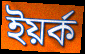
ইয়র্ক